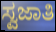
ಸ್ವಜಾತಿ